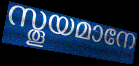
സ്തൂയമാനേ